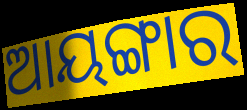
ଆୟଙ୍ଗାର